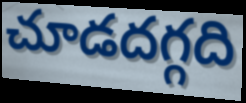
చూడదగ్గది